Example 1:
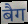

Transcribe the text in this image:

बैग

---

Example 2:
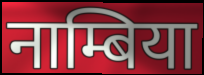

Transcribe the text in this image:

नाम्बिया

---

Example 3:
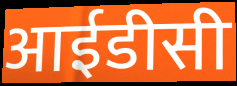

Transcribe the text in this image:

आईडीसी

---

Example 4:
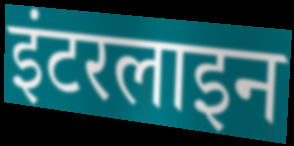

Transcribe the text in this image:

इंटरलाइन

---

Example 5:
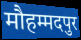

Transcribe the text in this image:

मौहम्मदपुर